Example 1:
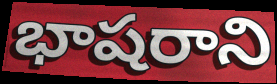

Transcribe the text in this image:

భాషరాని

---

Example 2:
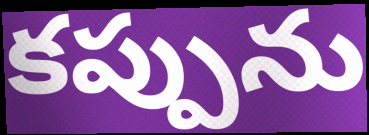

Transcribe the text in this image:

కప్పును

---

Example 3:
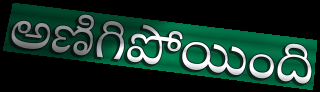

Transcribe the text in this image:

అణిగిపోయింది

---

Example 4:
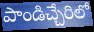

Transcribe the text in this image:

పాండిచ్చేరిలో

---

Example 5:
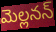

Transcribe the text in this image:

మెల్లనన్